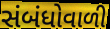
સંબંધોવાળી